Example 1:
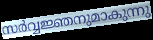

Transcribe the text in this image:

സർവ്വജ്ഞനുമാകുന്നു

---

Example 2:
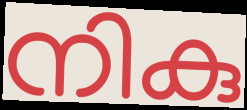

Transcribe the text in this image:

നികു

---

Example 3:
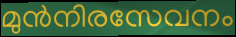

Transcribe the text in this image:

മുൻനിരസേവനം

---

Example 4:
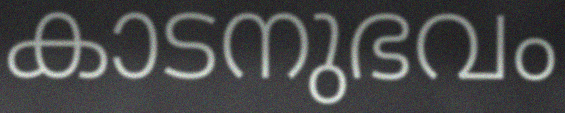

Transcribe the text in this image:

കാടനുഭവം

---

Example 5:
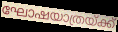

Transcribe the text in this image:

ഘോഷയാത്രയ്ക്ക്